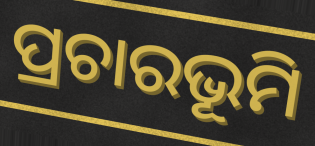
ପ୍ରଚାରଭୂମି